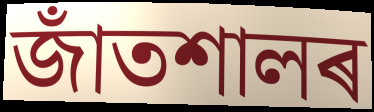
জাঁতশালৰ